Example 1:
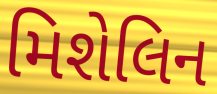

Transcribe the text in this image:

મિશેલિન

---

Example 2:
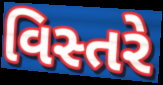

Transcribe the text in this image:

વિસ્તરે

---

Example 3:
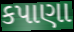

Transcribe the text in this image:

કપાણા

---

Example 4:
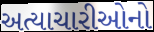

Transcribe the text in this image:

અત્યાચારીઓનો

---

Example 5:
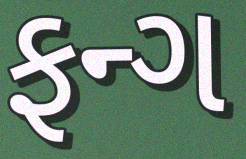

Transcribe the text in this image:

ફન્ગ